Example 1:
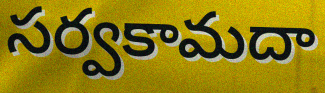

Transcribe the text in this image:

సర్వకామదా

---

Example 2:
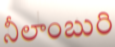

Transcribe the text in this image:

నీలాంబురి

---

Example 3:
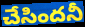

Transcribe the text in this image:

చేసిందనీ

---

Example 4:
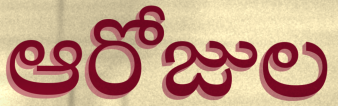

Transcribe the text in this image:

ఆరోజుల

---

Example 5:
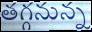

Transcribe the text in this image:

తగ్గనున్న